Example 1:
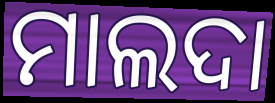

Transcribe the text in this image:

ମାଲଦା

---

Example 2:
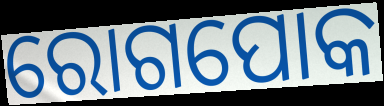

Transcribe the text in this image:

ରୋଗପୋକ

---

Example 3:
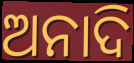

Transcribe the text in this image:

ଅନାଦି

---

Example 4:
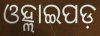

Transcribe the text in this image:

ଓହ୍ଲାଇପଡ଼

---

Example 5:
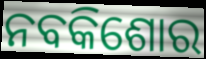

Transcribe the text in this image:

ନବକିଶୋର